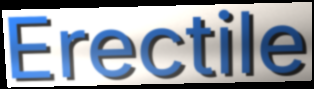
Erectile